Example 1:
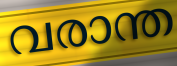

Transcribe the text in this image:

വരാന്ത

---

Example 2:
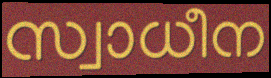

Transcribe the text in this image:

സ്വാധീന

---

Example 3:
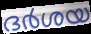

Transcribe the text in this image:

ദർശയ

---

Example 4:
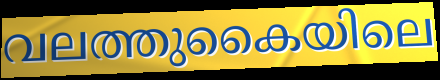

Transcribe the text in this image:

വലത്തുകൈയിലെ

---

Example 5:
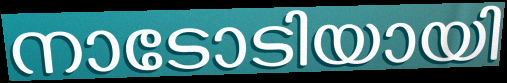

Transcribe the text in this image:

നാടോടിയായി